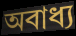
অবাধ্য